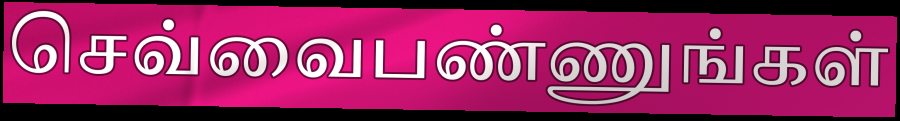
செவ்வைபண்ணுங்கள்